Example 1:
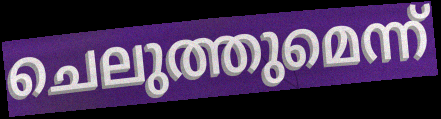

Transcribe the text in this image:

ചെലുത്തുമെന്ന്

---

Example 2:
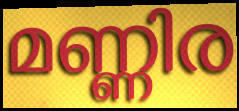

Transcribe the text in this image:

മണ്ണിര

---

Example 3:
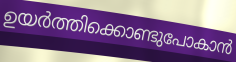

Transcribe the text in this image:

ഉയർത്തിക്കൊണ്ടുപോകാൻ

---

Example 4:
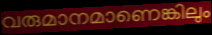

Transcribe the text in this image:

വരുമാനമാണെങ്കിലും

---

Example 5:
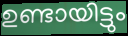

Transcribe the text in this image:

ഉണ്ടായിട്ടും